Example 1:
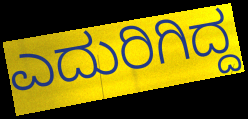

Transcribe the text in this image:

ಎದುರಿಗಿದ್ದ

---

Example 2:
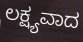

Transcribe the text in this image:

ಲಕ್ಷ್ಯವಾದ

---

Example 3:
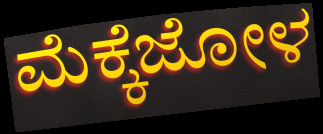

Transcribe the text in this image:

ಮೆಕ್ಕೆಜೋಳ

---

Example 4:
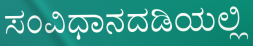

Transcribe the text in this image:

ಸಂವಿಧಾನದಡಿಯಲ್ಲಿ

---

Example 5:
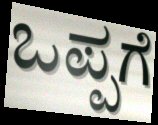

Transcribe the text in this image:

ಒಪ್ಪಗೆ